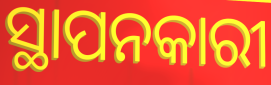
ସ୍ଥାପନକାରୀ